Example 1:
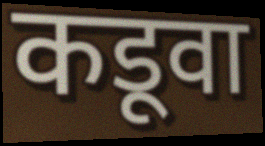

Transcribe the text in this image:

कडूवा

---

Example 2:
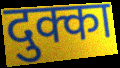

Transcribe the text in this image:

दुक्‍का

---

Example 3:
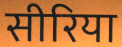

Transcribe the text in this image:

सीरिया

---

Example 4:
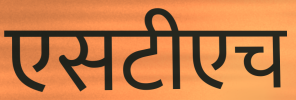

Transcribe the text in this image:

एसटीएच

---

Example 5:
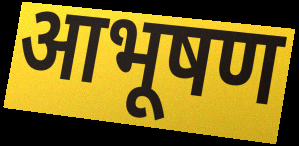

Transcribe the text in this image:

आभूषण